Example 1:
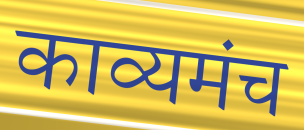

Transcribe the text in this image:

काव्यमंच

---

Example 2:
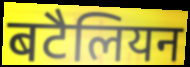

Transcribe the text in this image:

बटैलियन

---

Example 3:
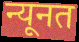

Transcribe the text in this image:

न्यूनत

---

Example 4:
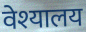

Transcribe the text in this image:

वेश्यालय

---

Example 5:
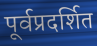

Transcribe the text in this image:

पूर्वप्रदर्शित